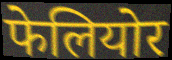
फेलियोर